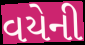
વયેની